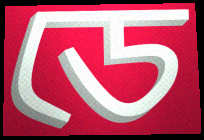
ডে